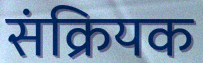
संक्रियक